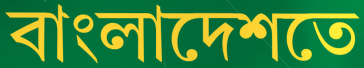
বাংলাদেশতে